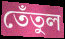
তেঁতুল